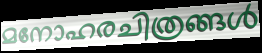
മനോഹരചിത്രങ്ങൾ